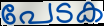
പേടക